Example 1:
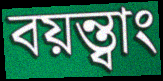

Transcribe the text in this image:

বয়ন্ত্বাং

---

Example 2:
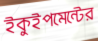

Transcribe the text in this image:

ইকুইপমেন্টের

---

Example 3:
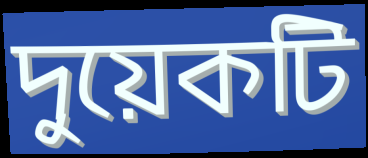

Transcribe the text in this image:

দুয়েকটি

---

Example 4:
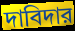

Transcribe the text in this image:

দাবিদার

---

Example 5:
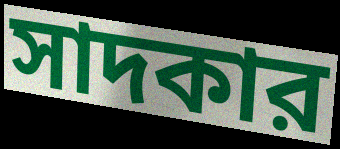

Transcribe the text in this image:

সাদকার